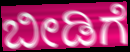
ಬೀಡಿಗೆ